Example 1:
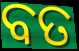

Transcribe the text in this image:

ବତ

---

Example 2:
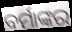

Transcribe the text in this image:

ବର୍ମାଙ୍କର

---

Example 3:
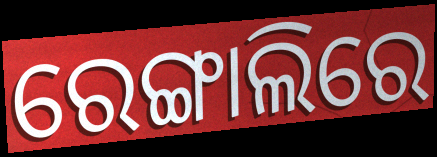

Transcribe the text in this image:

ରେଙ୍ଗାଲିରେ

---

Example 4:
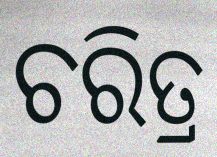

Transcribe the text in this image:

ଚରିତ୍ର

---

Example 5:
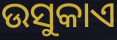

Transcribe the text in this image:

ଉସୁକାଏ